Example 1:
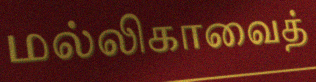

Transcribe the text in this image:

மல்லிகாவைத்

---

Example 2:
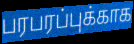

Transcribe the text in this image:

பரபரப்புக்காக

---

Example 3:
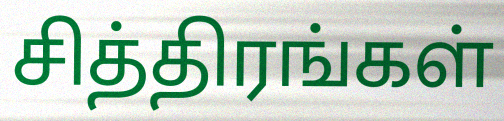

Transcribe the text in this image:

சித்திரங்கள்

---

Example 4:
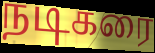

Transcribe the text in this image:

நடிகரை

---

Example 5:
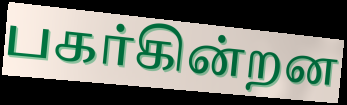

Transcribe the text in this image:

பகர்கின்றன